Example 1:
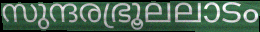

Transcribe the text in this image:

സുന്ദരഭ്രൂലലാടം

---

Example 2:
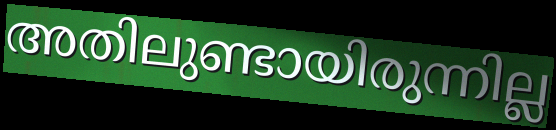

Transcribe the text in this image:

അതിലുണ്ടായിരുന്നില്ല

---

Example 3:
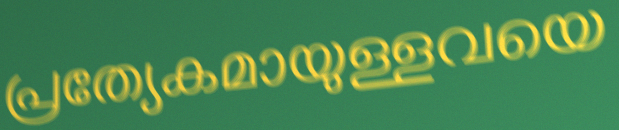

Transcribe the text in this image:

പ്രത്യേകമായുള്ളവയെ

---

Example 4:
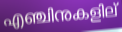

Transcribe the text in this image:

എഞ്ചിനുകളില്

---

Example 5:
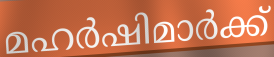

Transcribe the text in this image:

മഹർഷിമാർക്ക്